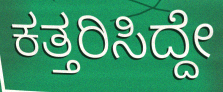
ಕತ್ತರಿಸಿದ್ದೇ